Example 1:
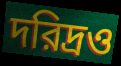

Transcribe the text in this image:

দরিদ্রও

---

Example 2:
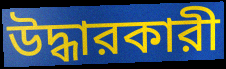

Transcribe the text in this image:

উদ্ধারকারী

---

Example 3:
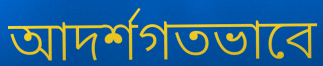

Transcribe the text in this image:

আদর্শগতভাবে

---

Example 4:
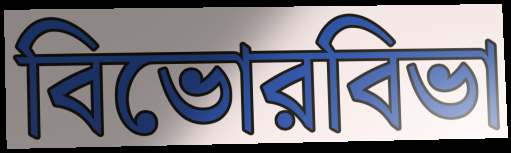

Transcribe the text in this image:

বিভোরবিভা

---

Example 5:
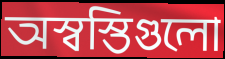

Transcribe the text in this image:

অস্বস্তিগুলো